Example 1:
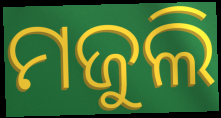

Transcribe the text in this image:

ମଜୁଲି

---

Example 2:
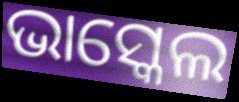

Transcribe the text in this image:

ଭାସ୍କେଲ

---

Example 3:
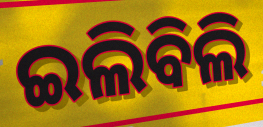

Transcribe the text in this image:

ଇଲିବିଲି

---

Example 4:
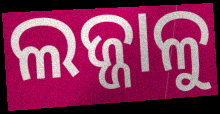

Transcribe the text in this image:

ଲଜ୍ଜାଳୁ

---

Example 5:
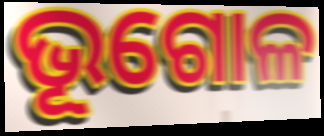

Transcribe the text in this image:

ଭୂଗୋଳ